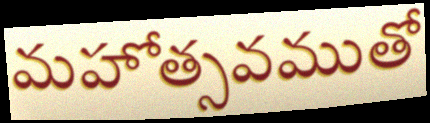
మహోత్సవముతో